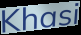
Khasi